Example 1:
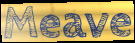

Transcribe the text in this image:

Meave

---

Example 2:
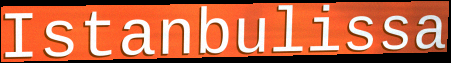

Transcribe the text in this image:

Istanbulissa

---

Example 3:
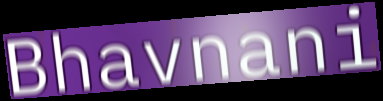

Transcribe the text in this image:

Bhavnani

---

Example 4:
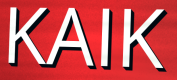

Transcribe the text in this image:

KAIK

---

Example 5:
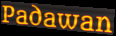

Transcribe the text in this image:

Padawan